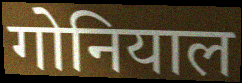
गोनियाल